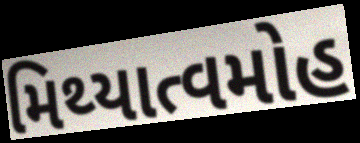
મિથ્યાત્વમોહ